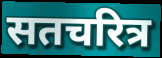
सतचरित्र